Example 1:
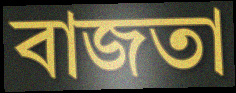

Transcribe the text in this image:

বাজতা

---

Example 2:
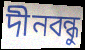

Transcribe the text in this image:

দীনবন্ধু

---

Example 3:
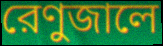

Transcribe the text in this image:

রেণুজালে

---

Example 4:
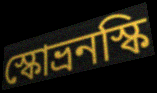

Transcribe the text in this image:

স্কোভ্রনস্কি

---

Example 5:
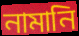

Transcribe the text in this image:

নামানি